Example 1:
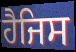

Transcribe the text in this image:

ਹੈਜਿਸ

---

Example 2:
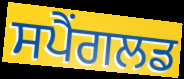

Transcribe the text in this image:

ਸਪੈਂਗਲਡ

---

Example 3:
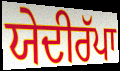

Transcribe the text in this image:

ਯੇਦੀਰੱਪਾ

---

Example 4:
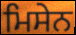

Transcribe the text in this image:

ਮਿਸੇਨ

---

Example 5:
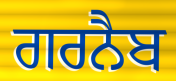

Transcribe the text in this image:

ਗਰਨੈਬ